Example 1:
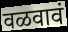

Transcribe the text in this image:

वळवावं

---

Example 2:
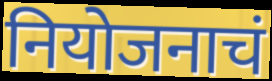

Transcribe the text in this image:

नियोजनाचं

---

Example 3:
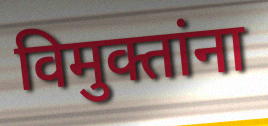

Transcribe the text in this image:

विमुक्तांना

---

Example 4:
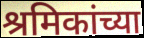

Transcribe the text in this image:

श्रमिकांच्या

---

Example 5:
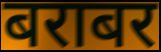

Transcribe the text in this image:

बराबर